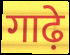
गाढ़े